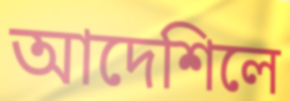
আদেশিলে